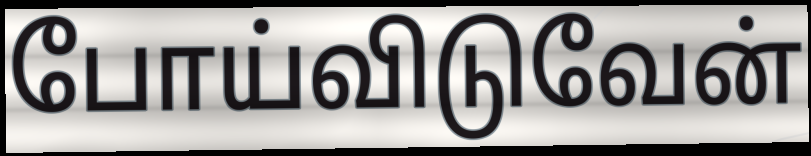
போய்விடுவேன்